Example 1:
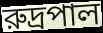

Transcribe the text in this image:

রুদ্রপাল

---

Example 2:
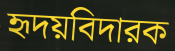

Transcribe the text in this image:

হৃদয়বিদারক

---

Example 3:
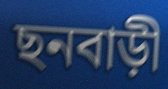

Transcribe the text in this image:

ছনবাড়ী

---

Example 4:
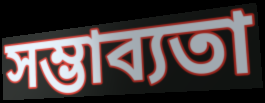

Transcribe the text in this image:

সম্ভাব্যতা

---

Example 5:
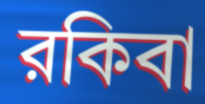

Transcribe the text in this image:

রকিবা